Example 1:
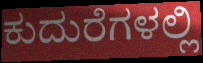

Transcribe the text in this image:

ಕುದುರೆಗಳಲ್ಲಿ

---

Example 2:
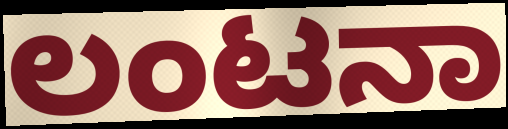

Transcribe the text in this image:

ಲಂಟನಾ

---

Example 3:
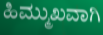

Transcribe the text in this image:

ಹಿಮ್ಮುಖವಾಗಿ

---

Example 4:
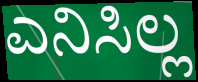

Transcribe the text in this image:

ಎನಿಸಿಲ್ಲ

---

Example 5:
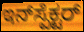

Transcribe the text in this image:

ಇನ್‌ಸ್ಪೆಕ್ಟರ್